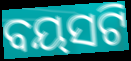
ବୟସଟି